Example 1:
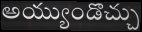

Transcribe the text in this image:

అయ్యుండొచ్చు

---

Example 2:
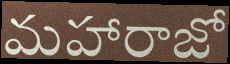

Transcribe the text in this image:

మహారాజో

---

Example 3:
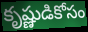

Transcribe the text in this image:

కృష్ణుడికోసం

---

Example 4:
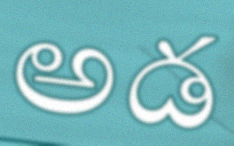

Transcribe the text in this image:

అడ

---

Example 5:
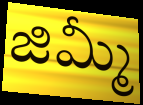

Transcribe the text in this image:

జిమ్మీ